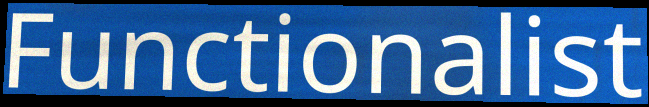
Functionalist